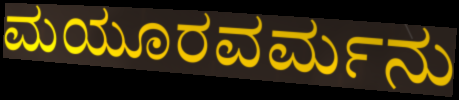
ಮಯೂರವರ್ಮನು